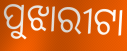
ପୁଝାରୀଟା